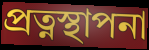
প্রত্নস্থাপনা